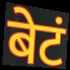
बेटं